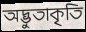
অদ্ভুতাকৃতি